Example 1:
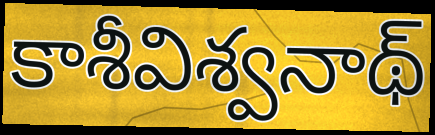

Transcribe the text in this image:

కాశీవిశ్వనాథ్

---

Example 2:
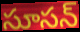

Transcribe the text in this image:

సూసన్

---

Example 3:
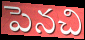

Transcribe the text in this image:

పెనచి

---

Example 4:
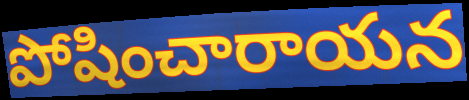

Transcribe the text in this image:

పోషించారాయన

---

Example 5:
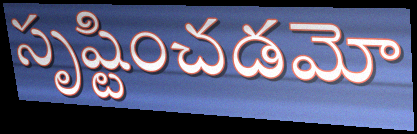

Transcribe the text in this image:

సృష్టించడమో